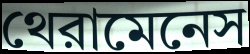
থেরামেনেস